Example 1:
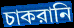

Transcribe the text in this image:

চাকরানি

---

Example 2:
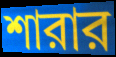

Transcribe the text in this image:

শারার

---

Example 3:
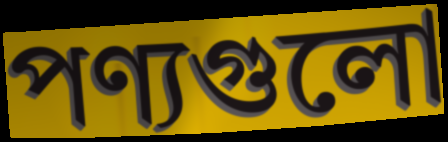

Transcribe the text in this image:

পণ্যগুলো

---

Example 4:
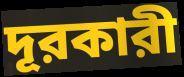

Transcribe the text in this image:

দূরকারী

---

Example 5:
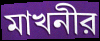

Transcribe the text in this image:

মাখনীর